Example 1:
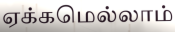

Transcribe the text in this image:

ஏக்கமெல்லாம்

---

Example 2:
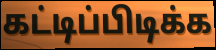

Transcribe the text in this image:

கட்டிப்பிடிக்க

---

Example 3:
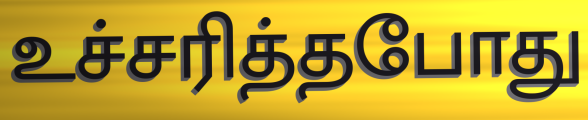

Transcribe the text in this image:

உச்சரித்தபோது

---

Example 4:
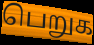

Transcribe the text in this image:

பெறுக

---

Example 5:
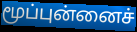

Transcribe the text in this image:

மூப்புன்னைச்